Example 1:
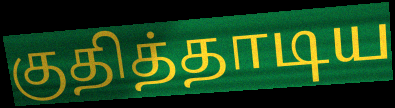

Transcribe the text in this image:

குதித்தாடிய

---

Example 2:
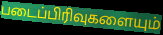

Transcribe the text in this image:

படைப்பிரிவுகளையும்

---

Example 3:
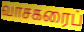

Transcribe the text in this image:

வாசகரைப்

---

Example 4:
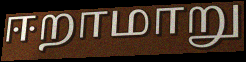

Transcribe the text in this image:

ஈறாமாறு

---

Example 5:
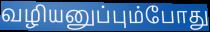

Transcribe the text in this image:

வழியனுப்பும்போது